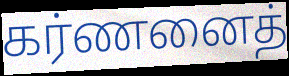
கர்ணனைத்